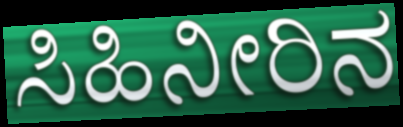
ಸಿಹಿನೀರಿನ